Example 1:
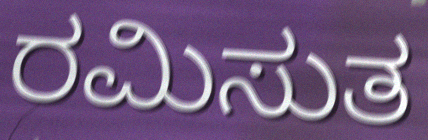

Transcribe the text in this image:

ರಮಿಸುತ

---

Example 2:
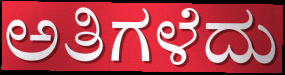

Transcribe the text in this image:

ಅತಿಗಳೆದು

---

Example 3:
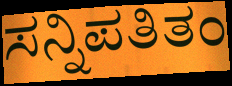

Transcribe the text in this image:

ಸನ್ನಿಪತಿತಂ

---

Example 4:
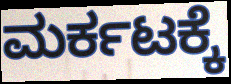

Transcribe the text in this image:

ಮರ್ಕಟಕ್ಕೆ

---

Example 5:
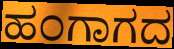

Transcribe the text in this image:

ಹಂಗಾಗದ